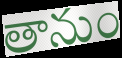
తానుం